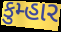
કુમ્હાર